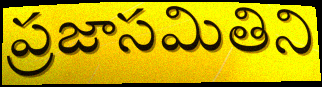
ప్రజాసమితిని